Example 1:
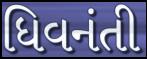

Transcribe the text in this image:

ધિવનંતી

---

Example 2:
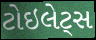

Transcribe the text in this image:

ટોઇલેટ્સ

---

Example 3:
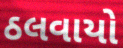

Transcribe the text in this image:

ઠલવાયો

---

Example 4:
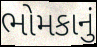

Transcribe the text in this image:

ભોમકાનું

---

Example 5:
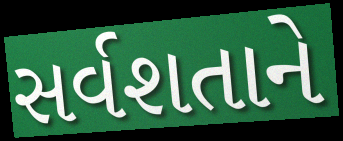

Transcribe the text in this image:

સર્વશતાને